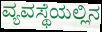
ವ್ಯವಸ್ಥೆಯಲ್ಲಿನ